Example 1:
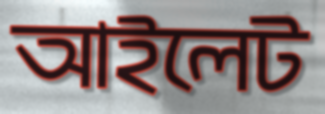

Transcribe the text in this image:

আইলেট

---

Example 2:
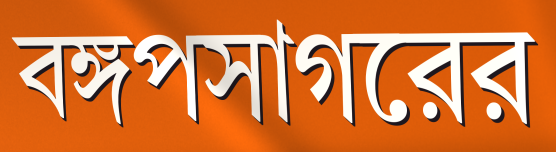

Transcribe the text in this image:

বঙ্গপসাগরের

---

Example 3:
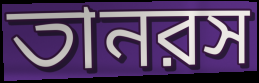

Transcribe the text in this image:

তানরস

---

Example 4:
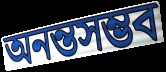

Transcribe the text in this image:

অনন্তসম্ভব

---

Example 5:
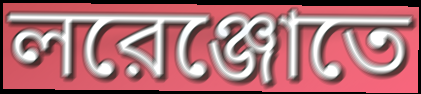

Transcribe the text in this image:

লরেঞ্জোতে